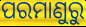
ପରମାଣୁରୁ